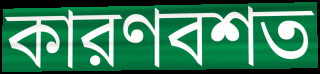
কারণবশত